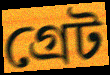
গ্ৰেট